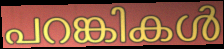
പറങ്കികൾ